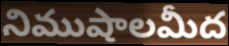
నిముషాలమీద